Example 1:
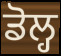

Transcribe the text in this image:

ਡੋਲ੍ਹ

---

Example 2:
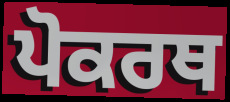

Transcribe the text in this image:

ਪੋਕਰਥ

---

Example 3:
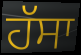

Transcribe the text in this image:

ਹੱਸਾ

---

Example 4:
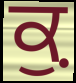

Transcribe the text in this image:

ਕ਼ੁ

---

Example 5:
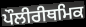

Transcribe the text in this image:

ਪੌਲੀਰੀਥਮਿਕ